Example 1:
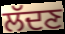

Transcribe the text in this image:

ਲੱਦਣ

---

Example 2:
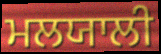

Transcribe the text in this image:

ਮਲਯਾਲੀ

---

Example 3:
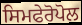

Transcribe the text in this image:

ਸਿਮਫੇਰੋਪੋਲ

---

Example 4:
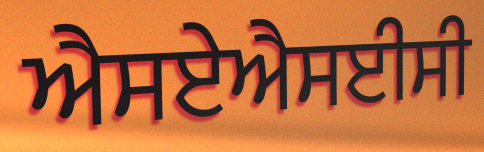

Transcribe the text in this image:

ਐਸਏਐਸਈਸੀ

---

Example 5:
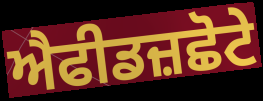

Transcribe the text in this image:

ਐਫੀਡਜ਼ਛੋਟੇ